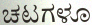
ಚಟಗಳೂ